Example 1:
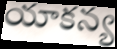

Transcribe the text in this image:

యాకన్య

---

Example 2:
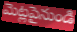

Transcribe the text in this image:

మెట్లపైనుండి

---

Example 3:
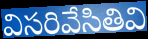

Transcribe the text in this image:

విసరివేసితివి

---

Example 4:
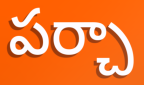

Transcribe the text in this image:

పర్చా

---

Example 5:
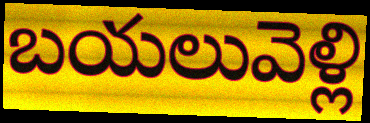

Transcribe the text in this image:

బయలువెళ్లి